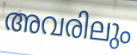
അവരിലും